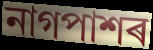
নাগপাশৰ